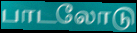
பாடலோடு